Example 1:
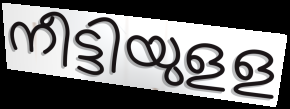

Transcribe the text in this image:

നീട്ടിയുളള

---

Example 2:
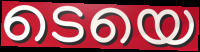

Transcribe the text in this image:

ടെയെ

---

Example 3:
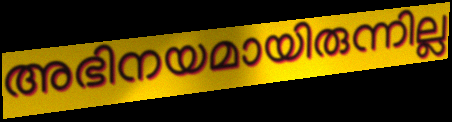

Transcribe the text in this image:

അഭിനയമായിരുന്നില്ല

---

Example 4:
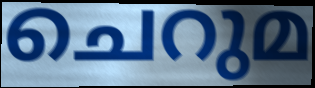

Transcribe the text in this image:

ചെറുമ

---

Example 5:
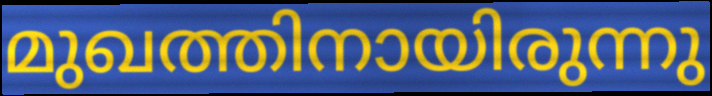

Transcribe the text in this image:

മുഖത്തിനായിരുന്നു